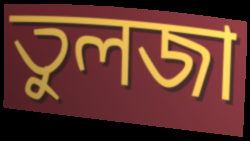
তুলজা